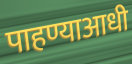
पाहण्याआधी